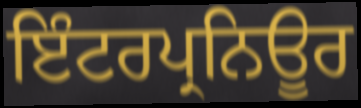
ਇੰਟਰਪ੍ਰਨਿਊਰ